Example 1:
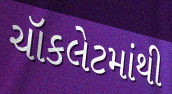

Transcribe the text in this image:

ચૉકલેટમાંથી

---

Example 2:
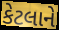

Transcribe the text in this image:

કેટલાને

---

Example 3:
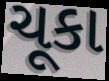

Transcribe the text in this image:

ચૂકા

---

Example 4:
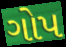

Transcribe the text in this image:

ગોપ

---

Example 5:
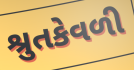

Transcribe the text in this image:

શ્રુતકેવળી